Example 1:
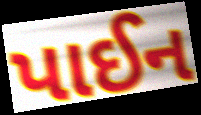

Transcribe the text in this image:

પાઈન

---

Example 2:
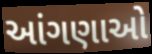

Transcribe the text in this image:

આંગણાઓ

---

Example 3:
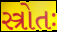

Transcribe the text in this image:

સ્ત્રોતઃ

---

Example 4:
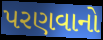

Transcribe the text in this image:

પરણવાનો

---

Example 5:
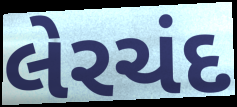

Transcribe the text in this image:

લેરચંદ